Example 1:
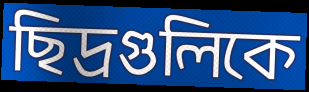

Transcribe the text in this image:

ছিদ্রগুলিকে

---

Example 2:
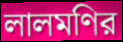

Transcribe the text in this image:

লালমণির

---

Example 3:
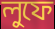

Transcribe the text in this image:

লুফে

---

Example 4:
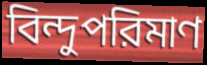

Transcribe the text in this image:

বিন্দুপরিমাণ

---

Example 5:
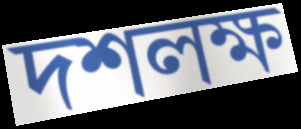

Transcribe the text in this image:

দশলক্ষ